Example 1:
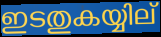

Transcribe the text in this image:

ഇടതുകയ്യില്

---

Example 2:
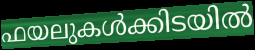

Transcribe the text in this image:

ഫയലുകൾക്കിടയിൽ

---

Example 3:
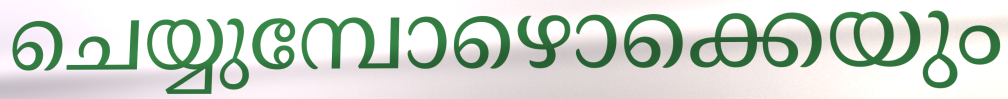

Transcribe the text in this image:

ചെയ്യുമ്പോഴൊക്കെയും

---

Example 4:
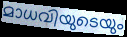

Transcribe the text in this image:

മാധവിയുടെയും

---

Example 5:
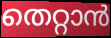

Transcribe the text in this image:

തെറ്റാൻ